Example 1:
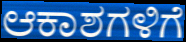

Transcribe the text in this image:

ಆಕಾಶಗಳಿಗೆ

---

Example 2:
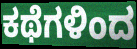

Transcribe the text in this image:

ಕಥೆಗಳಿಂದ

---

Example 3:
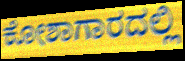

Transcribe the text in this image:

ಕೋಶಾಗಾರದಲ್ಲಿ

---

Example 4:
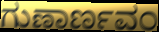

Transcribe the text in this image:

ಗುಣಾರ್ಣವಂ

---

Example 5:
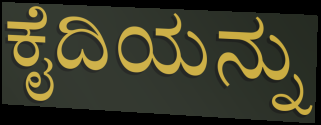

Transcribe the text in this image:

ಕೈದಿಯನ್ನು